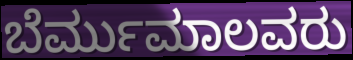
ಬೆರ್ಮುಮಾಲವರು